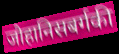
जोहानिसबर्गकी